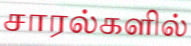
சாரல்களில்